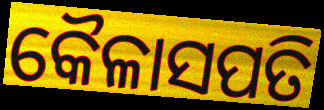
କୈଳାସପତି